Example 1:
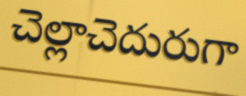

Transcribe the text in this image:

చెల్లాచెదురుగా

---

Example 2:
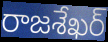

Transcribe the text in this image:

రాజశేఖర్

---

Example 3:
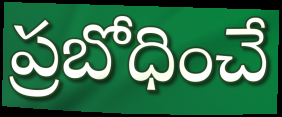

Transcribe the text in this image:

ప్రబోధించే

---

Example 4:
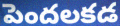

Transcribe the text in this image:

పెందలకడ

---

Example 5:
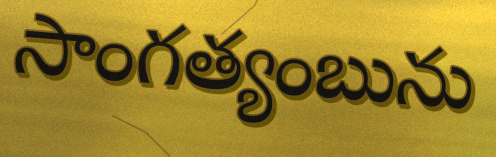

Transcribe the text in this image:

సాంగత్యంబును